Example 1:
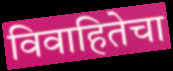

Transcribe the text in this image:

विवाहितेचा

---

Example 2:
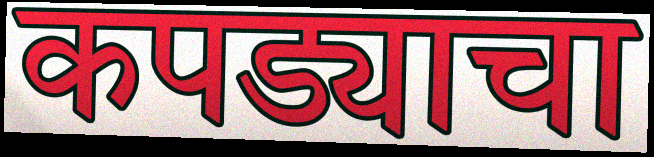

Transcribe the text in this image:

कपड्याचा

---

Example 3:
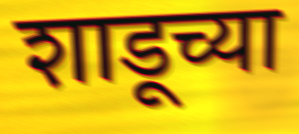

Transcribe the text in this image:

शाडूच्या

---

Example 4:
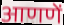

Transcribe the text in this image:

आणणें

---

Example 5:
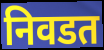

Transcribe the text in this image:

निवडत